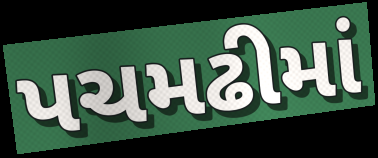
પચમઢીમાં